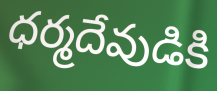
ధర్మదేవుడికి